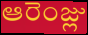
ఆరెంజ్లు